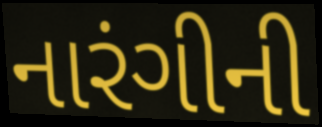
નારંગીની